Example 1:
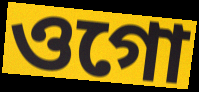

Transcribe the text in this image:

ওগো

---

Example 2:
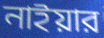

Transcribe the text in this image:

নাইয়ার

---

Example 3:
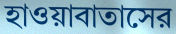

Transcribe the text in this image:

হাওয়াবাতাসের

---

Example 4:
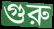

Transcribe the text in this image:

গুরু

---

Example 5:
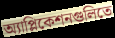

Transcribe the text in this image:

অ্যাপ্লিকেশনগুলিতে